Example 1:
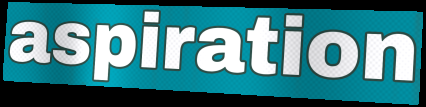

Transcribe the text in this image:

aspiration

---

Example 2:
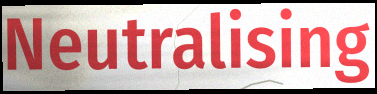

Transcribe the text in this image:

Neutralising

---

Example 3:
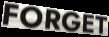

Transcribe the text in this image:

FORGET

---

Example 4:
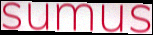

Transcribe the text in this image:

sumus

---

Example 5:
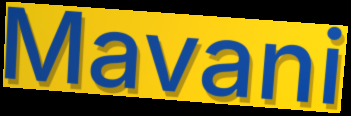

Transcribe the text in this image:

Mavani